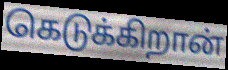
கெடுக்கிறான்